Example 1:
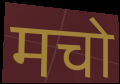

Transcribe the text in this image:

मचो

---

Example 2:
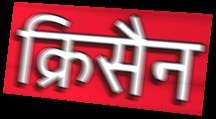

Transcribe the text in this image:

क्रिसैन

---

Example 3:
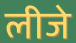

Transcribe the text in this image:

लीजे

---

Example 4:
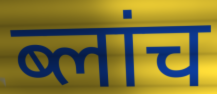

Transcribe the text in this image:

ब्लांच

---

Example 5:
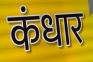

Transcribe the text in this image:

कंधार